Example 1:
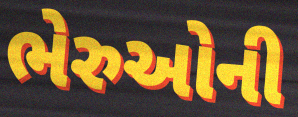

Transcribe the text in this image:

ભેરુઓની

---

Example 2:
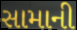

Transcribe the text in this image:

સામાની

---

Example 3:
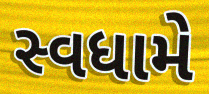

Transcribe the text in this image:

સ્વધામે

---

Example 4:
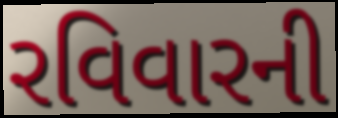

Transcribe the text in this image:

રવિવારની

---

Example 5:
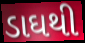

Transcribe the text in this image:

ડાઘથી